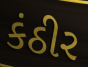
કંઠીર